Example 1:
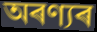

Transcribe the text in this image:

অৰণ্যৰ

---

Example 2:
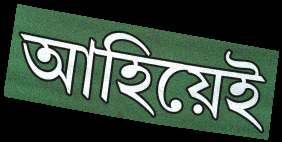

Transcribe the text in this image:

আহিয়েই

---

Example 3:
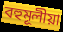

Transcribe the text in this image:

বহুমূলীয়া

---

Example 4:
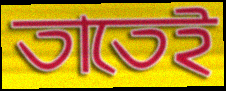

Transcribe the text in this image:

তাতেই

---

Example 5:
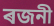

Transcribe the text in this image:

ৰজনী